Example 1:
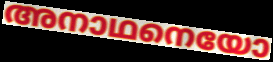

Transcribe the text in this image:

അനാഥനെയോ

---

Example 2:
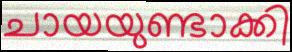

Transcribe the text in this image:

ചായയുണ്ടാക്കി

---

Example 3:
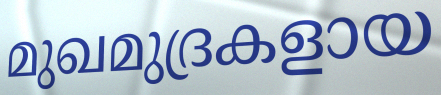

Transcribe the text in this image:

മുഖമുദ്രകളായ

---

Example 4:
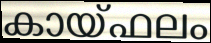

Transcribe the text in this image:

കായ്ഫലം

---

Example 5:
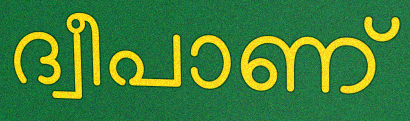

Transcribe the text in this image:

ദ്വീപാണ്